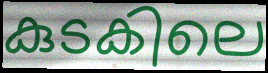
കുടകിലെ